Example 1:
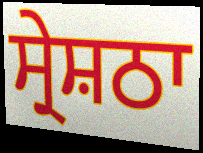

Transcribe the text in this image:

ਸ੍ਰੇਸ਼ਠਾ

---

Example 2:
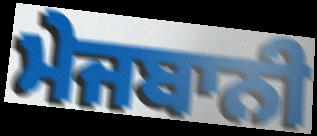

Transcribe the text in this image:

ਮੇਜਬਾਨੀ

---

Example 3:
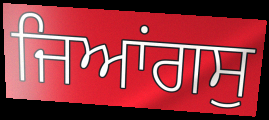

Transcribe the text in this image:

ਜਿਆਂਗਸੁ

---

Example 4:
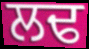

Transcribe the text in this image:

ਲਢ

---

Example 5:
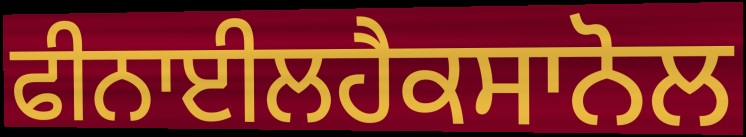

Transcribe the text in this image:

ਫੀਨਾਈਲਹੈਕਸਾਨੋਲ